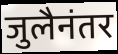
जुलैनंतर